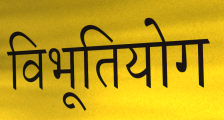
विभूतियोग